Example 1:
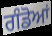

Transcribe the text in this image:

ਗੰਡੋਆਂ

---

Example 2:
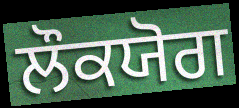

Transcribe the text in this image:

ਲੌਕਯੋਗ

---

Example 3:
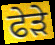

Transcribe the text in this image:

ਫੇੜੇ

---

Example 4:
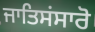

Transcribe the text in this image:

ਜਾਤਿਸਂਸਾਰੋ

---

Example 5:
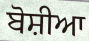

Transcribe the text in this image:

ਬੋਸ਼ੀਆ